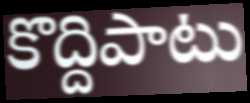
కొద్దిపాటు